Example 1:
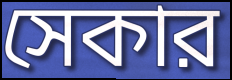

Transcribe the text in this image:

সেকার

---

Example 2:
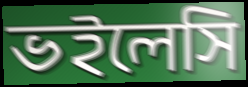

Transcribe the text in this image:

ভইলেসি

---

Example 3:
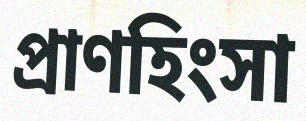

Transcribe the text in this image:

প্রাণহিংসা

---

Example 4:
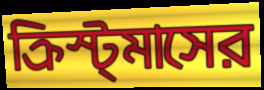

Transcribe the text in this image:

ক্রিস্ট্‌মাসের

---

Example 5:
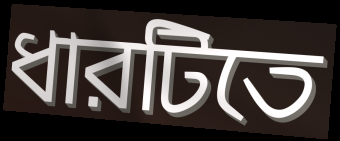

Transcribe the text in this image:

ধারটিতে